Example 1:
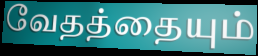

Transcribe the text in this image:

வேதத்தையும்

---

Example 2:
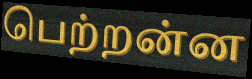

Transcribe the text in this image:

பெற்றன்ன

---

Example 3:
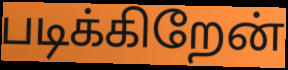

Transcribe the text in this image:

படிக்கிறேன்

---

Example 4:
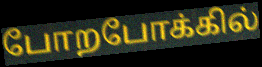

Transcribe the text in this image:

போறபோக்கில்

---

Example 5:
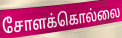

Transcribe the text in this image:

சோளக்கொல்லை